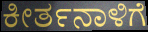
ಕೀರ್ತನಾಳಿಗೆ